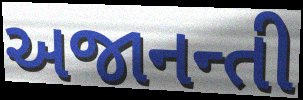
અજાનન્તી